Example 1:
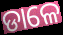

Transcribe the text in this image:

ଡାଳେ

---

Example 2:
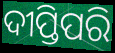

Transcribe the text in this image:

ଦୀପ୍ତିପରି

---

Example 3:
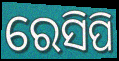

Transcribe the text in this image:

ରେସିପି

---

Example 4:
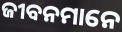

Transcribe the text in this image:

ଜୀବନମାନେ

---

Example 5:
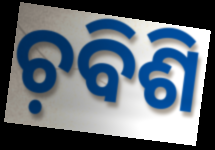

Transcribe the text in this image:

ଚ଼ବିଶି